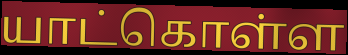
யாட்கொள்ள